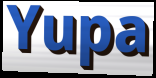
Yupa